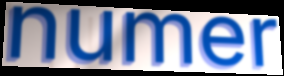
numer